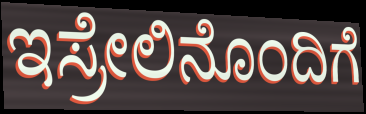
ಇಸ್ರೇಲಿನೊಂದಿಗೆ